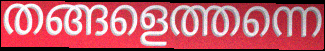
തങ്ങളെത്തന്നെ